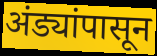
अंड्यांपासून